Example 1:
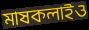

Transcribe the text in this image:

মাষকলাইও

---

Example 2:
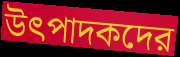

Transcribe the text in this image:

উৎপাদকদের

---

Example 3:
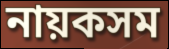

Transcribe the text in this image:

নায়কসম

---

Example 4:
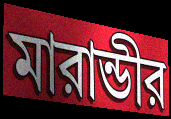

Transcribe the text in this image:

মারান্ডীর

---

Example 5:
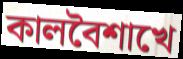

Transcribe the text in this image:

কালবৈশাখে